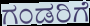
ಗಂಡರಿಗೆ